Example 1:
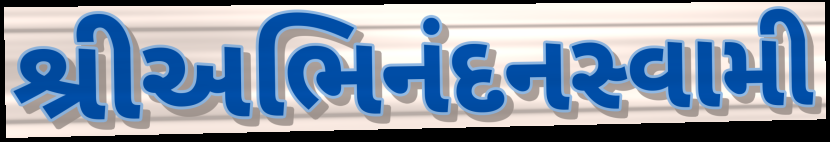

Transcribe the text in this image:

શ્રીઅભિનંદનસ્વામી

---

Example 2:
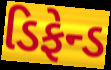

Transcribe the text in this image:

ડિફેન્ડ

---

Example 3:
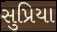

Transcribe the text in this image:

સુપ્રિયા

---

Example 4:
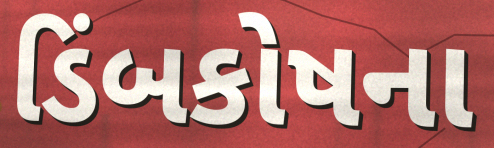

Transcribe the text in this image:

ડિંબકોષના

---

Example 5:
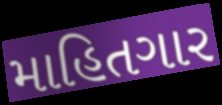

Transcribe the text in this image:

માહિતગાર